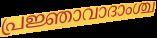
പ്രജ്ഞാവാദാംശ്ച